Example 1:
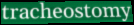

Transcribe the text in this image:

tracheostomy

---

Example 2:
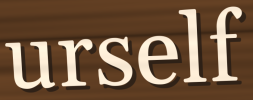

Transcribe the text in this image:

urself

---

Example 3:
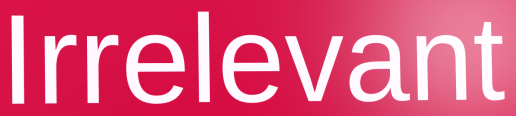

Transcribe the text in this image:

Irrelevant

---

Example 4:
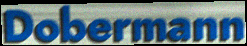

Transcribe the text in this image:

Dobermann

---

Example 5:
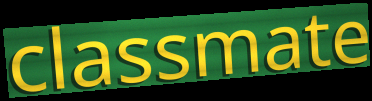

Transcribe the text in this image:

classmate